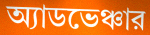
অ্যাডভেঞ্চার